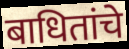
बाधितांचे